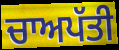
ਚਾਅਪੱਤੀ